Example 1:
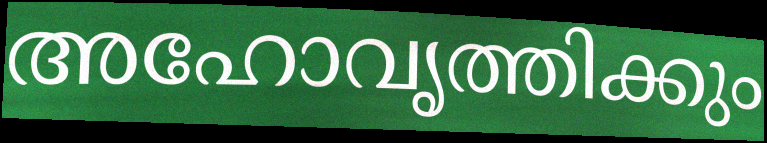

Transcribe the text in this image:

അഹോവൃത്തിക്കും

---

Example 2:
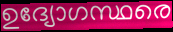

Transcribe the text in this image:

ഉദ്യോഗസ്ഥരെ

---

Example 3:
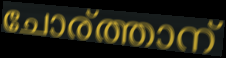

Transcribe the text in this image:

ചോര്ത്താന്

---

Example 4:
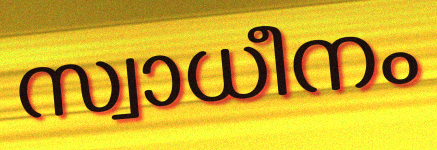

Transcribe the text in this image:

സ്വാധീനം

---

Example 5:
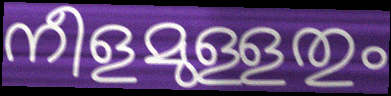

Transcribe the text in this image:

നീളമുള്ളതും